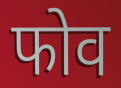
फोव